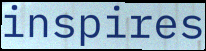
inspires